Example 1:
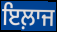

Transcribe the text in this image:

ਇਲ਼ਾਜ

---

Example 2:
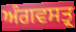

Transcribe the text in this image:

ਅੰਗਵਸਤ੍ਰ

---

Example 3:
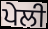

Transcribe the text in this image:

ਪੇਲੀ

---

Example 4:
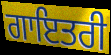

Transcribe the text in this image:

ਗਾਇਤਰੀ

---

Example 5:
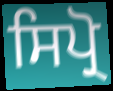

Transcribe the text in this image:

ਸਿਪ੍ਰੋ